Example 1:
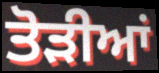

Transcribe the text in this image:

ਤੋਡ਼ੀਆਂ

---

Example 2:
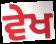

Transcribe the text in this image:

ਵੇਖ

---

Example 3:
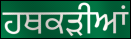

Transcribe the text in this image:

ਹਥਕੜੀਆਂ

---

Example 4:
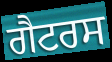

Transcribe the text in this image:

ਗੈਟਰਸ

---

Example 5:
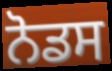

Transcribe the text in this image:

ਨੋਡਸ